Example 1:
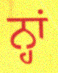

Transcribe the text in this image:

ਨ੍ਹਾਂ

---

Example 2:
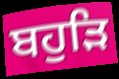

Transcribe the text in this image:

ਬਹੁੜਿ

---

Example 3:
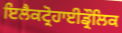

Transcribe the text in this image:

ਇਲੈਕਟ੍ਰੋਹਾਈਡ੍ਰੌਲਿਕ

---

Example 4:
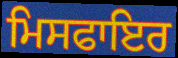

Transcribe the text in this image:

ਮਿਸਫਾਇਰ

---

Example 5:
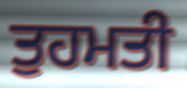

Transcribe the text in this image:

ਤੁਹਮਤੀ